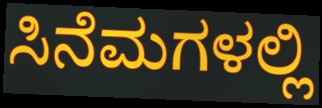
ಸಿನೆಮಗಳಲ್ಲಿ